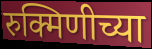
रुक्मिणीच्या